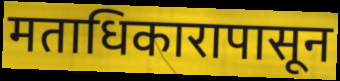
मताधिकारापासून